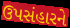
ઉપસંહારને